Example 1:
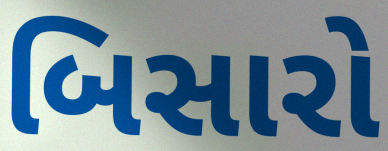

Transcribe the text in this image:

બિસારો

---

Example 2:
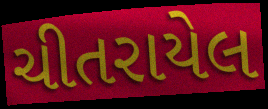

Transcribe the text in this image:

ચીતરાયેલ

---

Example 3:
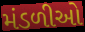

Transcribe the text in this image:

મંડળીઓ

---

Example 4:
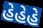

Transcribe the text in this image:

હેહેહે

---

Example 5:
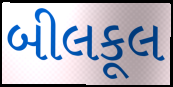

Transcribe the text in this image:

બીલકૂલ